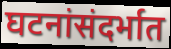
घटनांसंदर्भात